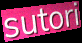
sutori